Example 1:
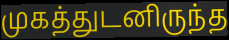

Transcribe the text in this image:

முகத்துடனிருந்த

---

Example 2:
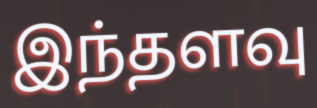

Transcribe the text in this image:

இந்தளவு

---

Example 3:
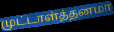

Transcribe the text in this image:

முட்டாள்த்தனமா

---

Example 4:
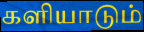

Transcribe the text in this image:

களியாடும்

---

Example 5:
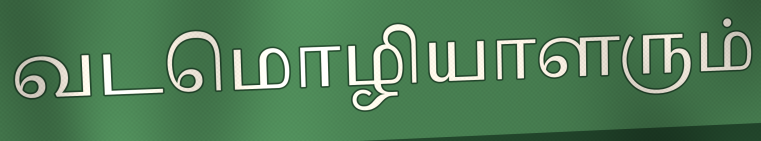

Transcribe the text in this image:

வடமொழியாளரும்